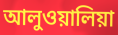
আলুওয়ালিয়া